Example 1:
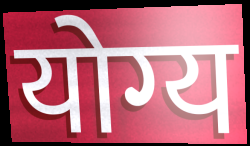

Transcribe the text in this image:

योग्य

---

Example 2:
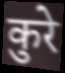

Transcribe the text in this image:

कुरे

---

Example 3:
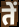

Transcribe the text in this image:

तें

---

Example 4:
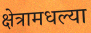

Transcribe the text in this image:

क्षेत्रामधल्या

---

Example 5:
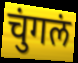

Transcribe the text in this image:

चुंगलं